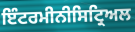
ਇੰਟਰਮੀਨੀਸਿਟ੍ਰਿਅਲ